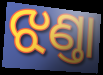
ଝଣ୍ତା